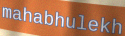
mahabhulekh